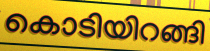
കൊടിയിറങ്ങി